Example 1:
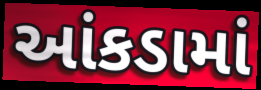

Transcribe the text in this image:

આંકડામાં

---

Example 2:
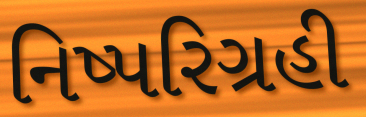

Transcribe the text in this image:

નિષ્પરિગ્રહી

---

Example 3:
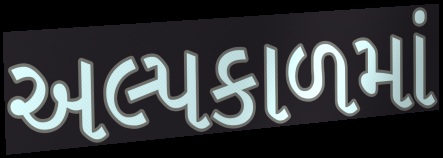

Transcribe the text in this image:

અલ્પકાળમાં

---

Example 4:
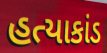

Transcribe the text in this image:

હત્યાકાંડ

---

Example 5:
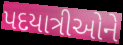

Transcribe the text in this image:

પદયાત્રીઓને